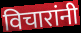
विचारांनी